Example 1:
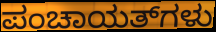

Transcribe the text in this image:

ಪಂಚಾಯತ್‌ಗಳು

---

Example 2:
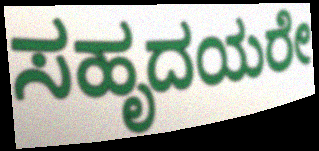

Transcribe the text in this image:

ಸಹೃದಯರೇ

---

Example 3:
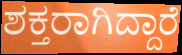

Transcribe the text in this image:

ಶಕ್ತರಾಗಿದ್ದಾರೆ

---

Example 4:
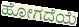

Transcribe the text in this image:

ಹೋಗದೆಯೆ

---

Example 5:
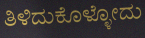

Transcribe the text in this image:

ತಿಳಿದುಕೊಳ್ಳೋದು